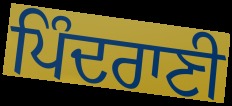
ਪਿੰਦਰਾਣੀ